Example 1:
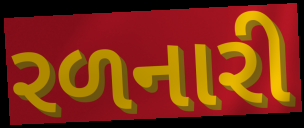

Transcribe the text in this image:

રળનારી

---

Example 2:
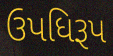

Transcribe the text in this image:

ઉપધિરૂપ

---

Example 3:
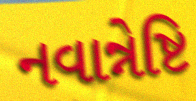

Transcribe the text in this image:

નવાન્નેષ્ટિ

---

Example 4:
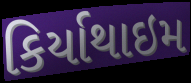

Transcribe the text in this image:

કિર્યાથાઇમ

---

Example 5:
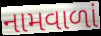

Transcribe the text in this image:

નામવાળાં